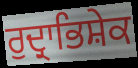
ਰੁਦ੍ਰਾਭਿਸ਼ੇਕ